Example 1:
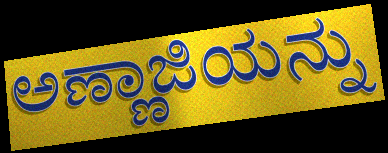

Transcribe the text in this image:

ಅಣ್ಣಾಜಿಯನ್ನು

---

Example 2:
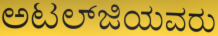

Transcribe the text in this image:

ಅಟಲ್‍ಜಿಯವರು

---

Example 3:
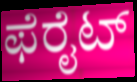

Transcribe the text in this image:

ಫೆರೈಟ್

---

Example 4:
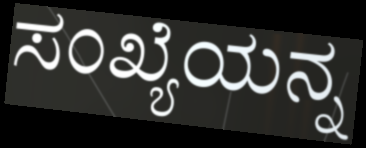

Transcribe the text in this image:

ಸಂಖ್ಯೆಯನ್ನ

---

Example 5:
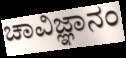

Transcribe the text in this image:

ಚಾವಿಜ್ಞಾನಂ